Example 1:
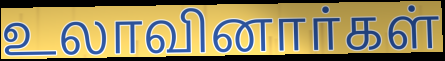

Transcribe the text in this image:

உலாவினார்கள்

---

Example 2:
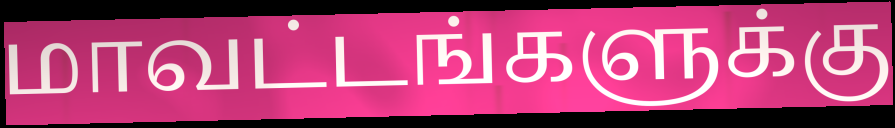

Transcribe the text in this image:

மாவட்டங்களுக்கு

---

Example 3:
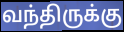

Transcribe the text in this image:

வந்திருக்கு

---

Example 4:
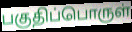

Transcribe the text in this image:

பகுதிப்பொருள்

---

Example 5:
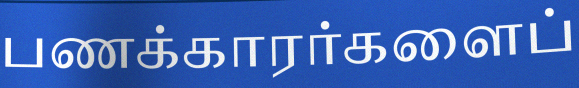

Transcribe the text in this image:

பணக்காரர்களைப்